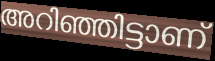
അറിഞ്ഞിട്ടാണ്